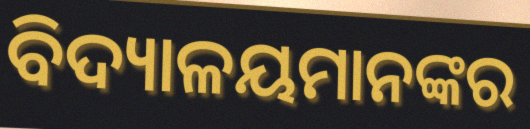
ବିଦ୍ୟାଳୟମାନଙ୍କର